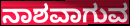
ನಾಶವಾಗುವ